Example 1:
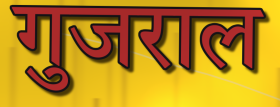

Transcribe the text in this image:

गुजराल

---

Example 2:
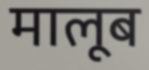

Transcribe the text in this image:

मालूब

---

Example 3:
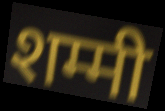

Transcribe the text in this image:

शम्मी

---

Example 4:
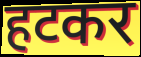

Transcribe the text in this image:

हटकर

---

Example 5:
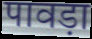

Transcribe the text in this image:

पावड़ा